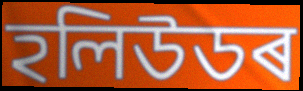
হলিউডৰ